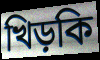
খিড়কি